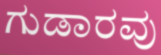
ಗುಡಾರವು